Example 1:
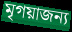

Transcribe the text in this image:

মৃগয়াজন্য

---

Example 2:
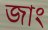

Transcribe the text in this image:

জাং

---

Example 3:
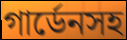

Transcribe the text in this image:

গার্ডেনসহ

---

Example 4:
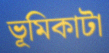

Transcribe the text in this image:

ভূমিকাটা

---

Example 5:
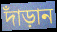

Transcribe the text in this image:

দাঁড়ান